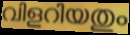
വിളറിയതും